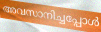
അവസാനിച്ചപ്പോൾ